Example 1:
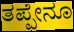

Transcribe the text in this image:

ತಪ್ಪೇನೂ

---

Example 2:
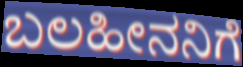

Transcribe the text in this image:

ಬಲಹೀನನಿಗೆ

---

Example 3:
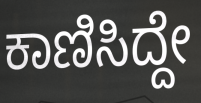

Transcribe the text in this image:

ಕಾಣಿಸಿದ್ದೇ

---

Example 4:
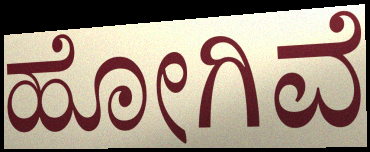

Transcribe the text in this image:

ಹೋಗಿವೆ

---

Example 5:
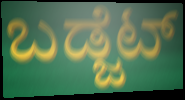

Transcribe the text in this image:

ಬಡ್ಜೆಟ್